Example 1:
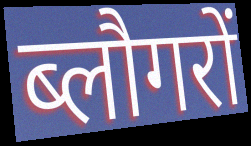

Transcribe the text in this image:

ब्लौगरों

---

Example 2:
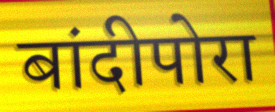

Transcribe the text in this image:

बांदीपोरा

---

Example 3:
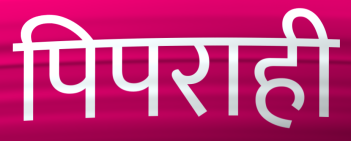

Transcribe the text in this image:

पिपराही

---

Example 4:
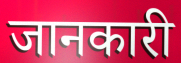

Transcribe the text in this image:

जानकारी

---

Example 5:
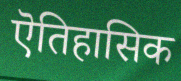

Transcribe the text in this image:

ऎतिहासिक